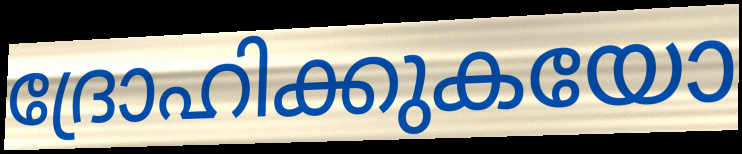
ദ്രോഹിക്കുകയോ